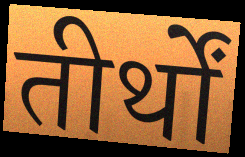
तीर्थों